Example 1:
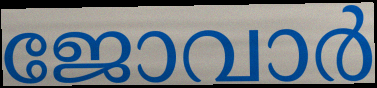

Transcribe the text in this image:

ജോവാർ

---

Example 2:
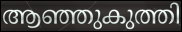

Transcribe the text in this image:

ആഞ്ഞുകുത്തി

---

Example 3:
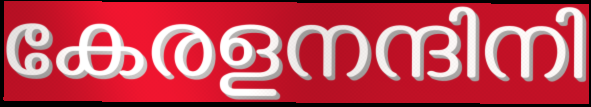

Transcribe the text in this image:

കേരളനന്ദിനി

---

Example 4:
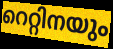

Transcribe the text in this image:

റെറ്റിനയും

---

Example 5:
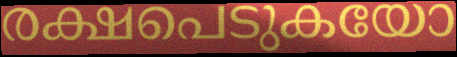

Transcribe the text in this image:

രക്ഷപെടുകയോ